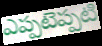
ఎప్పటెప్పటి